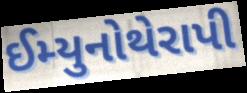
ઈમ્યુનોથેરાપી